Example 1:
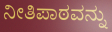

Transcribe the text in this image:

ನೀತಿಪಾಠವನ್ನು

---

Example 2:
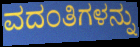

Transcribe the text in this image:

ವದಂತಿಗಳನ್ನು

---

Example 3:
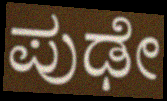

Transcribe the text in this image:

ಪುಢೇ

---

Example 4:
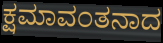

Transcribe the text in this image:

ಕ್ಷಮಾವಂತನಾದ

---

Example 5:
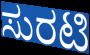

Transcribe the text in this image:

ಸುರಟಿ